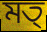
মত্